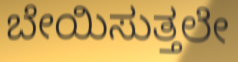
ಬೇಯಿಸುತ್ತಲೇ